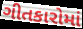
ગીતકારોમાં